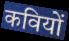
कवियों